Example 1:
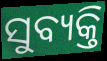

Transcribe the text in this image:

ସୁବ୍ୟକ୍ତି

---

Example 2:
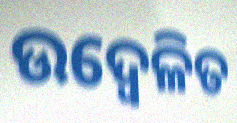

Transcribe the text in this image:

ଉଦ୍ବେଳିତ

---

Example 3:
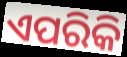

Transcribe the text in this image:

ଏପରିକି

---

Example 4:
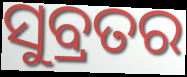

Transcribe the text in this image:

ସୁବ୍ରତର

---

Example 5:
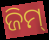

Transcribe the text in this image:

ଜିମ୍